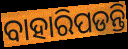
ବାହାରିପଡନ୍ତି